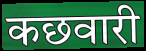
कछवारी